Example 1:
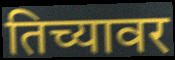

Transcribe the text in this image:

तिच्यावर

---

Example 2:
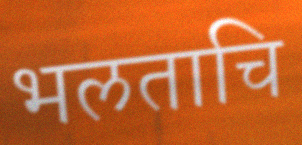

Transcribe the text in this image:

भलताचि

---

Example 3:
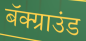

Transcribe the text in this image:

बॅक्ग्राउंड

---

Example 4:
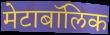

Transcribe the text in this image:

मेटाबॉलिक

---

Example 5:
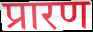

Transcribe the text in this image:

प्रारण